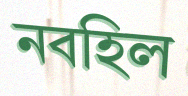
নবহিল